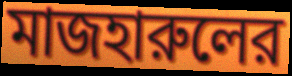
মাজহারুলের